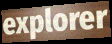
explorer